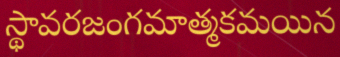
స్థావరజంగమాత్మకమయిన